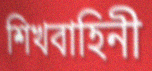
শিখবাহিনী